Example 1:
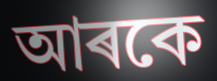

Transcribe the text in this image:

আৰকে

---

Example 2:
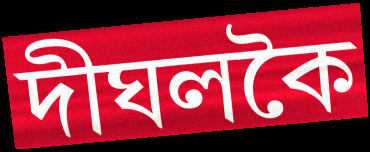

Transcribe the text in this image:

দীঘলকৈ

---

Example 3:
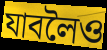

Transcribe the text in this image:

যাবলৈও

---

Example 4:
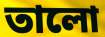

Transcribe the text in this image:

তালো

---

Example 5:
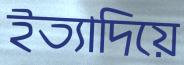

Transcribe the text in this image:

ইত্যাদিয়ে